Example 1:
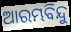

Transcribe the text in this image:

ଆରମ୍ଭବିନ୍ଦୁ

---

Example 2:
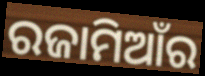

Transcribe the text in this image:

ରଜାମିଆଁର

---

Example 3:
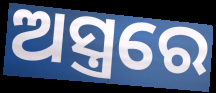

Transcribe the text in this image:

ଅସ୍ତ୍ରରେ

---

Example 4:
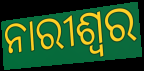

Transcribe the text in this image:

ନାରୀଶ୍ବର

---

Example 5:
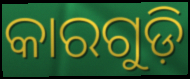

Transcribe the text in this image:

କାରଗୁଡ଼ି